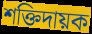
শক্তিদায়ক